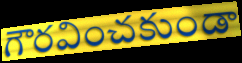
గౌరవించకుండా